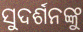
ସୁଦର୍ଶନଙ୍କୁ